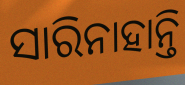
ସାରିନାହାନ୍ତି